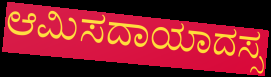
ಆಮಿಸದಾಯಾದಸ್ಸ